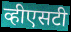
व्हीएसटी